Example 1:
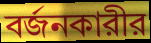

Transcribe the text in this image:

বর্জনকারীর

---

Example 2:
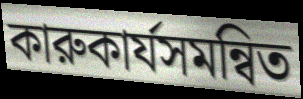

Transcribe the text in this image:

কারুকার্যসমন্বিত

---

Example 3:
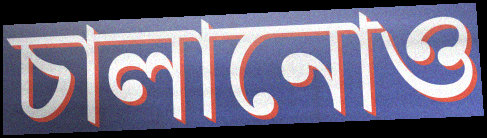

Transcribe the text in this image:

চালানোও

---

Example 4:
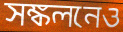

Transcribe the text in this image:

সঙ্কলনেও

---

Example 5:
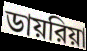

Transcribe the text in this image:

ডায়রিয়া